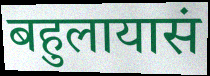
बहुलायासं